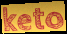
keto